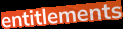
entitlements